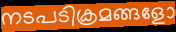
നടപടിക്രമങ്ങളോ